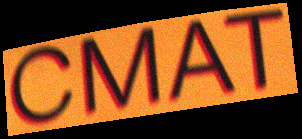
CMAT